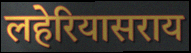
लहेरियासराय